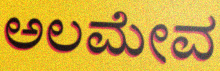
ಅಲಮೇವ